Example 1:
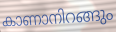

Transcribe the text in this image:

കാണാനിറങ്ങും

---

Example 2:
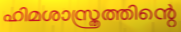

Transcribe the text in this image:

ഹിമശാസ്ത്രത്തിന്റെ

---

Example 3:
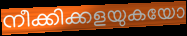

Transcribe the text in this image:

നീക്കിക്കളയുകയോ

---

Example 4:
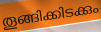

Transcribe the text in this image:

തൂങ്ങിക്കിടക്കും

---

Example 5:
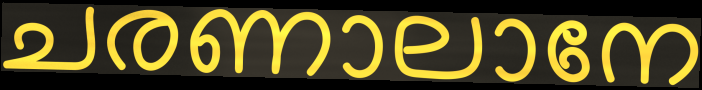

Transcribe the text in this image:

ചരണാലാനേ